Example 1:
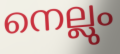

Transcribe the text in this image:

നെല്ലും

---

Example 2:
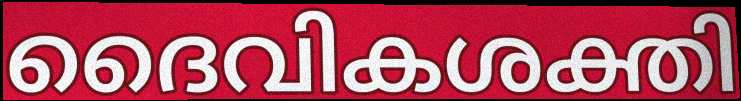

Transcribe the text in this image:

ദൈവികശക്തി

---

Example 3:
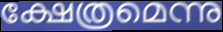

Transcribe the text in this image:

ക്ഷേത്രമെന്നു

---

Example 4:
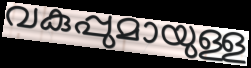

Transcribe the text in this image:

വകുപ്പുമായുള്ള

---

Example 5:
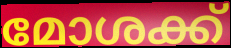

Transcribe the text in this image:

മോശക്ക്